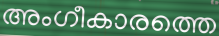
അംഗീകാരത്തെ